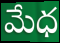
మేధ